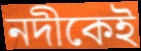
নদীকেই